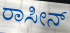
ರಾಸೀನ್